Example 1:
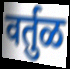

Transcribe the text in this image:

वर्तुळ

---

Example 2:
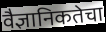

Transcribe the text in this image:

वैज्ञानिकतेचा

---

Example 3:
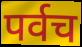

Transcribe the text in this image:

पर्वच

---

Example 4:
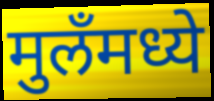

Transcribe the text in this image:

मुलँमध्ये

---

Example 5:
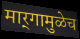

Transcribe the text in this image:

मार्गामुळेच